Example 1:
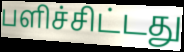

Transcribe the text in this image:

பளிச்சிட்டது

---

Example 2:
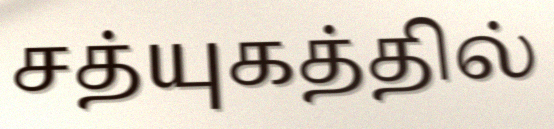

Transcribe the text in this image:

சத்யுகத்தில்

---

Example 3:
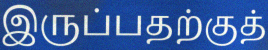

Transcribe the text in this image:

இருப்பதற்குத்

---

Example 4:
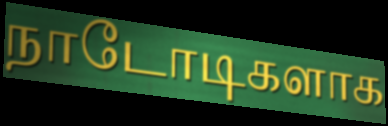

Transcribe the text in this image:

நாடோடிகளாக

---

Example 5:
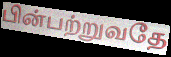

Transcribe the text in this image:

பின்பற்றுவதே